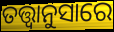
ତତ୍ତ୍ୱାନୁସାରେ